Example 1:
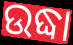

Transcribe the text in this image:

ଉଦ୍ଧା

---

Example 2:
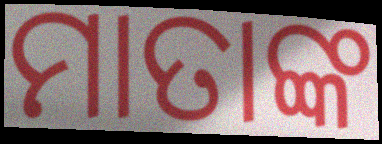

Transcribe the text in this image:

ମାତାଙ୍କ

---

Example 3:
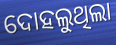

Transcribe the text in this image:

ଦୋହଲୁଥିଲା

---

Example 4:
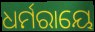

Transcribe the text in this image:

ଧର୍ମରାୟେ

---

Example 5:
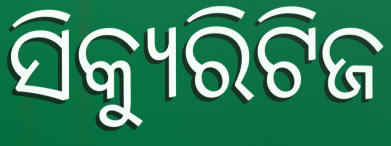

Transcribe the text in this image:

ସିକ୍ୟୁରିଟିଜ